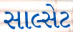
સાલ્સેટ